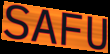
SAFU